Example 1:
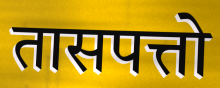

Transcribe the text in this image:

तासपत्तो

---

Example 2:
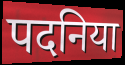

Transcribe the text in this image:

पदनिया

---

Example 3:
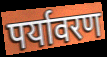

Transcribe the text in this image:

पर्यावरण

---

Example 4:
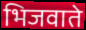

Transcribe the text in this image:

भिजवाते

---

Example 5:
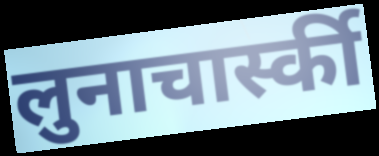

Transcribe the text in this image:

लुनाचार्स्की